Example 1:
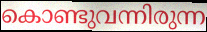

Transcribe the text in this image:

കൊണ്ടുവന്നിരുന്ന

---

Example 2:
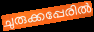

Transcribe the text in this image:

ചുരുക്കപ്പേരിൽ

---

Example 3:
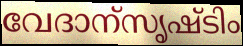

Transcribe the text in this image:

വേദാന്സൃഷ്ടിം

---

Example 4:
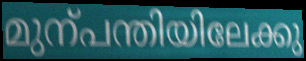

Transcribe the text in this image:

മുന്പന്തിയിലേക്കു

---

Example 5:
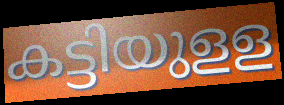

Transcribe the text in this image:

കട്ടിയുളള